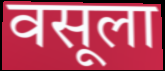
वसूला